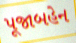
પૂજાબહેન